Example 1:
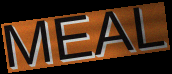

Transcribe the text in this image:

MEAL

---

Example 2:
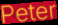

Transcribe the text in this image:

Peter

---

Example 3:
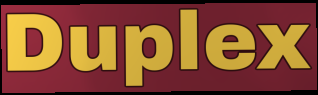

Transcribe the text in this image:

Duplex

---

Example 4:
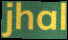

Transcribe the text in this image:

jhal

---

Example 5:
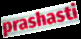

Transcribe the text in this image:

prashasti